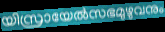
യിസ്രായേൽസഭമുഴുവനും